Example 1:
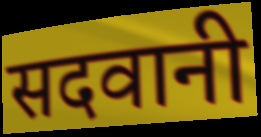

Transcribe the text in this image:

सदवानी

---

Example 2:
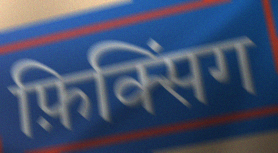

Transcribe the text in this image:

फ़िक्सिंग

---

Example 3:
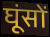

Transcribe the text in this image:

घूंसों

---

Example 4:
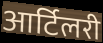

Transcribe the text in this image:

आर्टिलरी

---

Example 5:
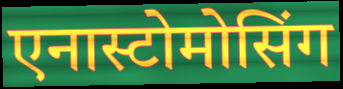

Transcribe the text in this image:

एनास्टोमोसिंग